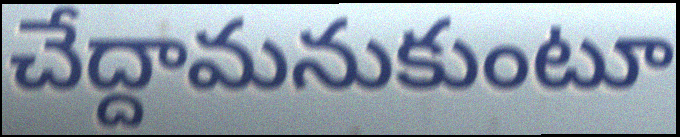
చేద్దామనుకుంటూ